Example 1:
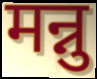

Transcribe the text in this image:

मन्नु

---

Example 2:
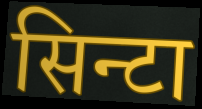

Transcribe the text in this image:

सिन्टा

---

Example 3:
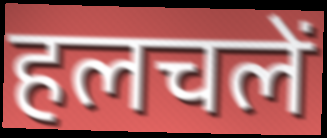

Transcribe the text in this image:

हलचलें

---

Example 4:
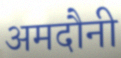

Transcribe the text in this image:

अमदौनी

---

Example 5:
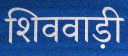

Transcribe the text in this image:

शिववाड़ी